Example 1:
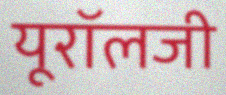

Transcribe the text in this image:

यूरॉलजी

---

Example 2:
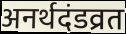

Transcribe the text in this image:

अनर्थदंडव्रत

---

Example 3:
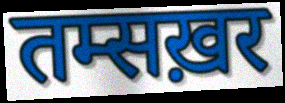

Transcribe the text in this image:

तम्सख़र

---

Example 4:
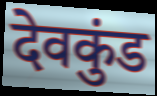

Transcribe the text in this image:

देवकुंड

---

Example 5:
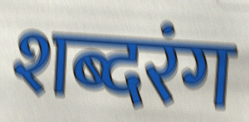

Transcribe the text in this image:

शब्दरंग